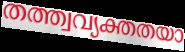
തത്ത്വവ്യക്തതയാ